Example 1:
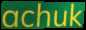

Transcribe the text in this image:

achuk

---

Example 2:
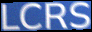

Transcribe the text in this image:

LCRS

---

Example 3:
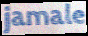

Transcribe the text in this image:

jamale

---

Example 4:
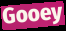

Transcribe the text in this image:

Gooey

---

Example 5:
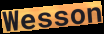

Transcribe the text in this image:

Wesson